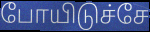
போயிடுச்சே